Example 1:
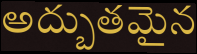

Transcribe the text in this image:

అద్బుతమైన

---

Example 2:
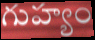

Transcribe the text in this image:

గుహ్యం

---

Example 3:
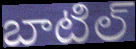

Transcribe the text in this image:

బాటిల్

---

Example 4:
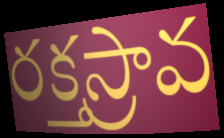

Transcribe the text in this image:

రక్తస్రావ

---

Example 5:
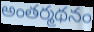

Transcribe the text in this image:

అంతర్మథనం